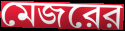
মেজরের